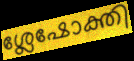
ശ്ലേഷോക്തി